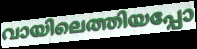
വായിലെത്തിയപ്പോ